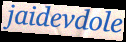
jaidevdole